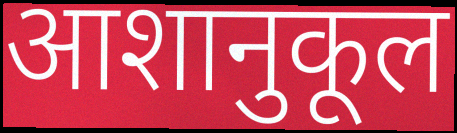
आशानुकूल